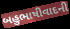
બહુભાષીવાદની